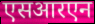
एसआरएन